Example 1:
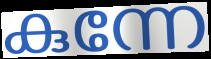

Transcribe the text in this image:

കുന്നേ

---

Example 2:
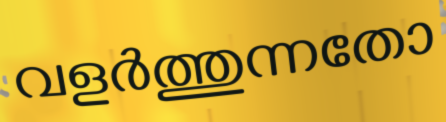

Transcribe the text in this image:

വളർത്തുന്നതോ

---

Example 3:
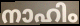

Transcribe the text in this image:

നാഹിം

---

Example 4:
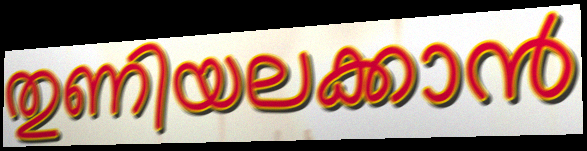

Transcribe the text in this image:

തുണിയലക്കാൻ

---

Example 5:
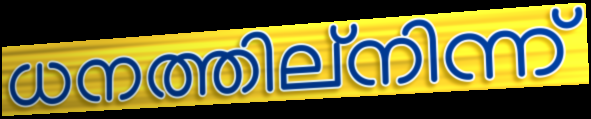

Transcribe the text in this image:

ധനത്തില്നിന്ന്